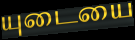
யுடையை